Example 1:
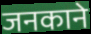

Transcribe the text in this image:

जनकाने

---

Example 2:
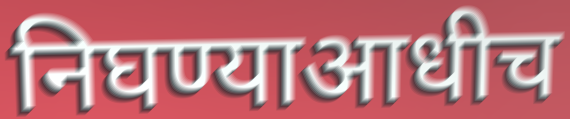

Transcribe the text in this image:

निघण्याआधीच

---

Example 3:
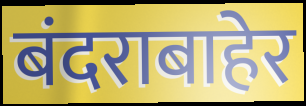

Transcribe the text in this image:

बंदराबाहेर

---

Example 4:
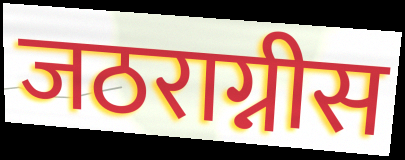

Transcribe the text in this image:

जठराग्नीस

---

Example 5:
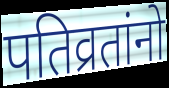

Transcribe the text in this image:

पतिव्रतांनो